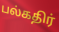
பல்கதிர்